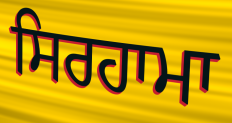
ਸਿਰਹਾਮਾ